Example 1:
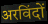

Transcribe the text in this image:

अरविंदों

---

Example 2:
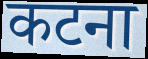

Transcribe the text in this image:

कटना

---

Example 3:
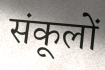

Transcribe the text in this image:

संकूलों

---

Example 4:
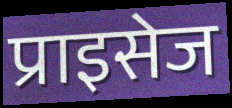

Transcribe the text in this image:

प्राइसेज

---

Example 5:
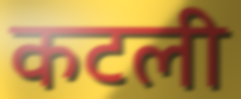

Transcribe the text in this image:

कटली